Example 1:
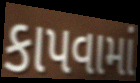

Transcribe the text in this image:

કાપવામાં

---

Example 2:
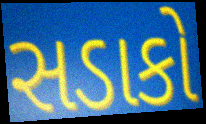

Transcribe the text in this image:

સડાકો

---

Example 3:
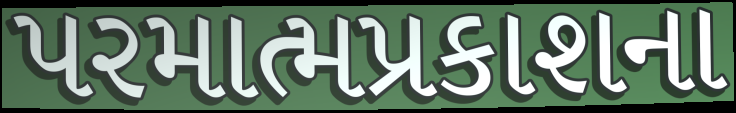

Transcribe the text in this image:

પરમાત્મપ્રકાશના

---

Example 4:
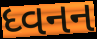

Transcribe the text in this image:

ધ્વનન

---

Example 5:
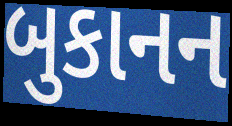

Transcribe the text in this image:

બુકાનન